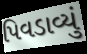
પિવડાવ્યું